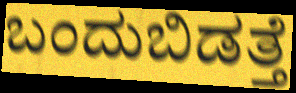
ಬಂದುಬಿಡತ್ತೆ